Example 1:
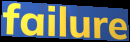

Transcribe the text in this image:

failure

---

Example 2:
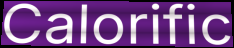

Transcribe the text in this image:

Calorific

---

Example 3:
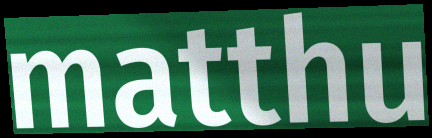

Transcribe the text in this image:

matthu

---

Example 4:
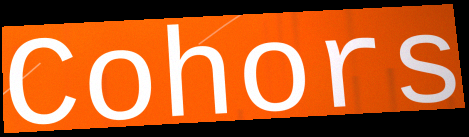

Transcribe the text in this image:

Cohors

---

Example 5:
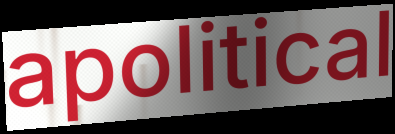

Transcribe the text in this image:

apolitical